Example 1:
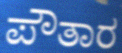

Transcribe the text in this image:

ಪೌತಾರ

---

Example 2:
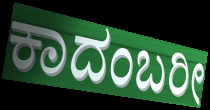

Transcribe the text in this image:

ಕಾದಂಬರೀ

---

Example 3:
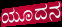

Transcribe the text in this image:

ಯೂದನ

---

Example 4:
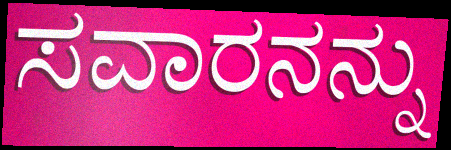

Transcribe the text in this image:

ಸವಾರನನ್ನು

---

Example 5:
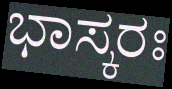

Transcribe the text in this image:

ಭಾಸ್ಕರಃ